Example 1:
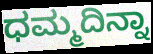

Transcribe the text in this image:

ಧಮ್ಮದಿನ್ನಾ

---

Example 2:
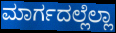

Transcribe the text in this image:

ಮಾರ್ಗದಲ್ಲೆಲ್ಲಾ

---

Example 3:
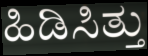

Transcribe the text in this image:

ಹಿಡಿಸಿತ್ತು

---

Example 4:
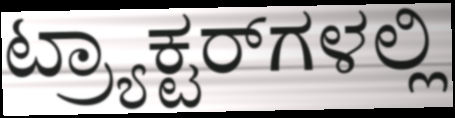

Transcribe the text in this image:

ಟ್ರ್ಯಾಕ್ಟರ್‌ಗಳಲ್ಲಿ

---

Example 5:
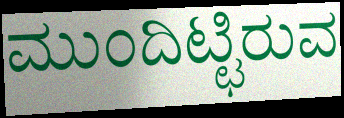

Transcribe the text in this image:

ಮುಂದಿಟ್ಟಿರುವ